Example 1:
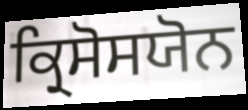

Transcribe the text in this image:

ਕ੍ਰਿਸੋਸਯੋਨ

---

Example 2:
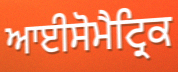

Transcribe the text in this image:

ਆਈਸੋਮੈਟ੍ਰਿਕ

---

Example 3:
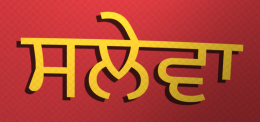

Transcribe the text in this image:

ਸਲੇਵਾ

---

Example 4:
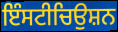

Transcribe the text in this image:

ਇੰਸਟੀਚਿਉਸ਼ਨ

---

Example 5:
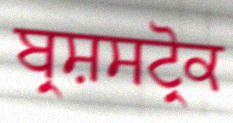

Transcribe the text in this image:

ਬ੍ਰਸ਼ਸਟ੍ਰੋਕ